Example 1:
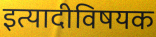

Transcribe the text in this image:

इत्यादीविषयक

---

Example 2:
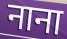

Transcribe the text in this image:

नाना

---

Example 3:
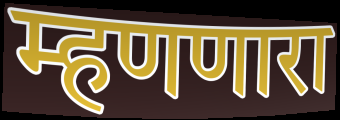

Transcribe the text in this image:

म्हणणारा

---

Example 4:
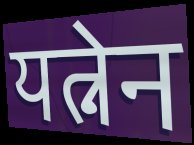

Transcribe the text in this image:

यत्नेन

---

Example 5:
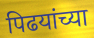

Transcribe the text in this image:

पिढयांच्या